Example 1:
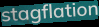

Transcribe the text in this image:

stagflation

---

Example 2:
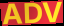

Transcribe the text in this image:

ADV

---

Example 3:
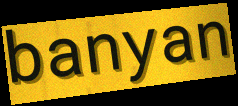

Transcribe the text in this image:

banyan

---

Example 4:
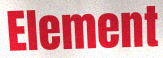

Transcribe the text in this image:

Element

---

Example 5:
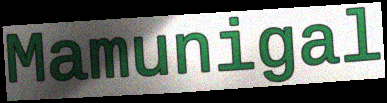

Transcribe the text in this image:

Mamunigal